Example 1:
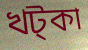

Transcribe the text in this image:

খট্‌কা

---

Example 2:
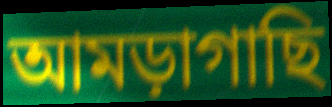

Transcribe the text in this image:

আমড়াগাছি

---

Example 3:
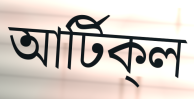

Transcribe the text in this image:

আর্টিক্‌ল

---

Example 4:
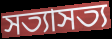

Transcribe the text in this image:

সত্যাসত্য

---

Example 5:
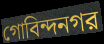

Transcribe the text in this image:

গোবিন্দনগর